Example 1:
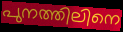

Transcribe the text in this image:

പുനത്തിലിനെ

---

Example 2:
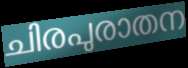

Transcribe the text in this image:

ചിരപുരാതന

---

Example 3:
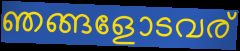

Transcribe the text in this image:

ഞങ്ങളോടവര്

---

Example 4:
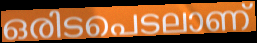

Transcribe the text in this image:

ഒരിടപെടലാണ്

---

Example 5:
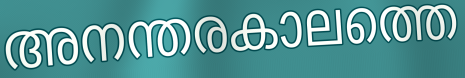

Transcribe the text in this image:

അനന്തരകാലത്തെ